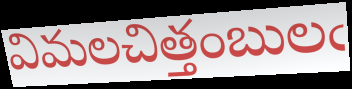
విమలచిత్తంబులఁ